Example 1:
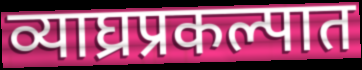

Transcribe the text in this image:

व्याघ्रप्रकल्पात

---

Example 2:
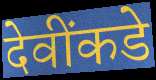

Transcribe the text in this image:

देवींकडे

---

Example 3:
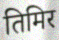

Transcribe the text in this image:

तिमिर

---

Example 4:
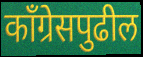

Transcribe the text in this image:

काँग्रेसपुढील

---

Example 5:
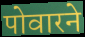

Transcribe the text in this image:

पोवारने